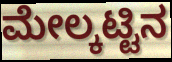
ಮೇಲ್ಕಟ್ಟಿನ